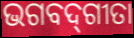
ଭଗବଦ୍‌ଗୀତା